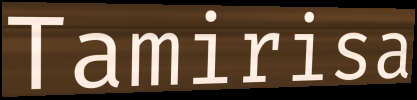
Tamirisa